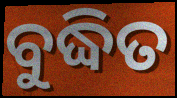
ବୁଦ୍ଧିତ